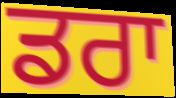
ਡਰਾ